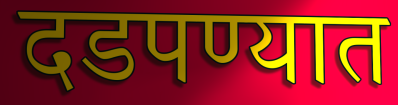
दडपण्यात